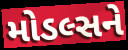
મોડલ્સને